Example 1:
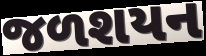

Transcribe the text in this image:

જળશયન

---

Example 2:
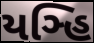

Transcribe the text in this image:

યઞ્હિ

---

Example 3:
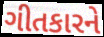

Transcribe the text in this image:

ગીતકારને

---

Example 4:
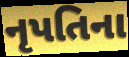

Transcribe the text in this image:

નૃપતિના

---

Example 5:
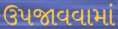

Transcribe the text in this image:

ઉપજાવવામાં